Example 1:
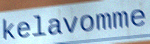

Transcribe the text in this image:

kelavomme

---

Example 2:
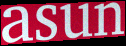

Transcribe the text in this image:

asun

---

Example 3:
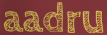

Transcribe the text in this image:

aadru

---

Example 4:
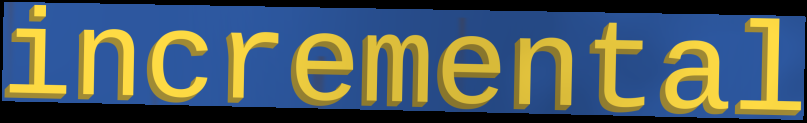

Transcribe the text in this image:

incremental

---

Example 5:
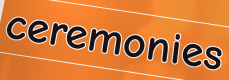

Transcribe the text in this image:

ceremonies